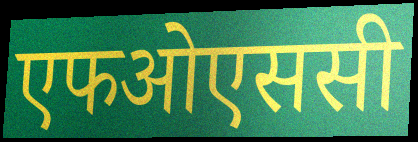
एफओएससी